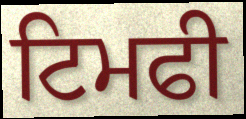
ਟਿਮਫੀ